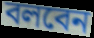
বলবেন